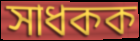
সাধকক